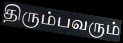
திரும்பவரும்